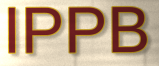
IPPB